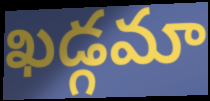
ఖడ్గమా